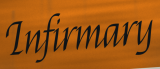
Infirmary